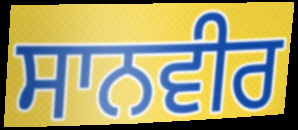
ਸਾਨਵੀਰ